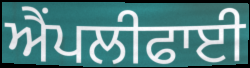
ਐਂਪਲੀਫਾਈ